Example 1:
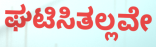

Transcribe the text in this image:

ಘಟಿಸಿತಲ್ಲವೇ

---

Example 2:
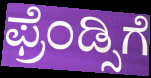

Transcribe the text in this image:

ಫ್ರೆಂಡ್ಸಿಗೆ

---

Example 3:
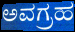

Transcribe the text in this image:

ಅವಗ್ರಹ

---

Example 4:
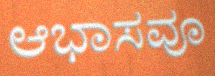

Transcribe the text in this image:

ಆಭಾಸವೂ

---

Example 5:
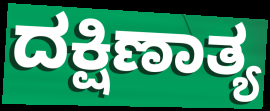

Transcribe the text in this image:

ದಕ್ಷಿಣಾತ್ಯ